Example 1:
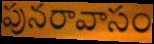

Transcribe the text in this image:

పునరావాసం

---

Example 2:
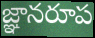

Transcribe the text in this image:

జ్ఞానరూప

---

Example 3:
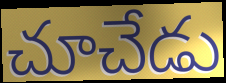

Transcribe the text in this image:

చూచేడు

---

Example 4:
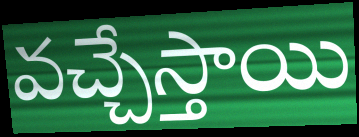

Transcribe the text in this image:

వచ్చేస్తాయి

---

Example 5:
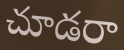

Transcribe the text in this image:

చూడరా